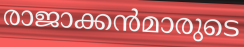
രാജാക്കൻമാരുടെ